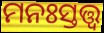
ମନଃସ୍ତତ୍ତ୍ଵ